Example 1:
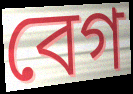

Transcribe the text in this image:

বেগ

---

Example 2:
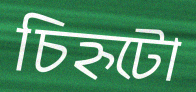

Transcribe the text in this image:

চিহ্নটো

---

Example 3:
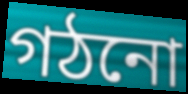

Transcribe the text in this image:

গঠনো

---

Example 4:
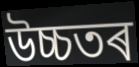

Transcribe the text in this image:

উচ্চতৰ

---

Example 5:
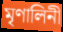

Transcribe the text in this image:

মৃণালিনী